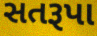
સતરૂપા